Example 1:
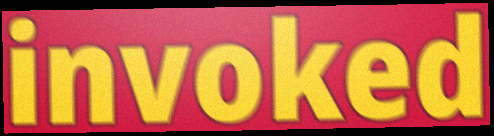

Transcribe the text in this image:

invoked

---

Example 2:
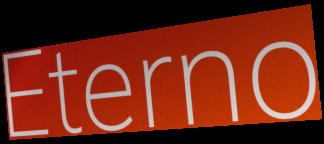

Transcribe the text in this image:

Eterno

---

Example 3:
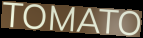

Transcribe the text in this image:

TOMATO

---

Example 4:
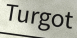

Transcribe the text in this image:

Turgot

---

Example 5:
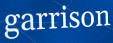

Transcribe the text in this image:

garrison